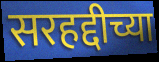
सरहद्दीच्या